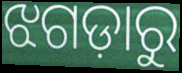
ଝଗଡ଼ାରୁ